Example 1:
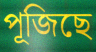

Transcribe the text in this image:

পূজিছে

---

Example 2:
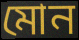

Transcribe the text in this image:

মোন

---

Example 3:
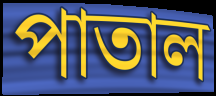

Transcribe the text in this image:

পাতাল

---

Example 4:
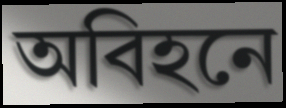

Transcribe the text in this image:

অবিহনে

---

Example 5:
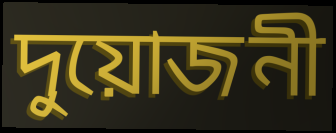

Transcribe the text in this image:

দুয়োজনী